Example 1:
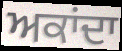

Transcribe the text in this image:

ਅਕਾਂਦਾ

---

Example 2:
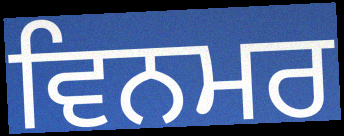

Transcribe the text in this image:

ਵਿਨਮਰ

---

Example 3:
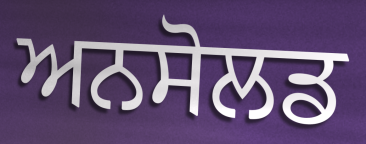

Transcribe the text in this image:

ਅਨਸੋਲਡ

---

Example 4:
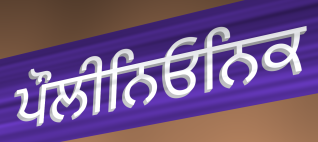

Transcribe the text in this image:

ਪੌਲੀਨਿਓਨਿਕ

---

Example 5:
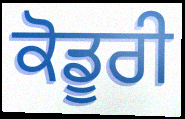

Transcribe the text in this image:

ਕੋਡੂਰੀ